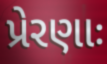
પ્રેરણાઃ